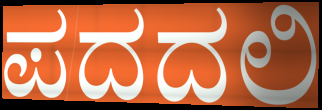
ಪದದಲಿ